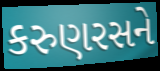
કરુણરસને